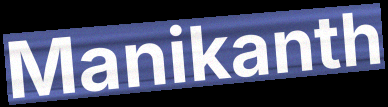
Manikanth